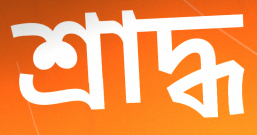
শ্ৰাদ্ধ